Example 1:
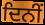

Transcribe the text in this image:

ਦਿਨੀਂ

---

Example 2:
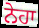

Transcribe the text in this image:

ਨੇਹਾ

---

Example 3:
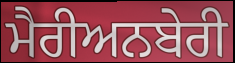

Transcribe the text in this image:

ਮੈਰੀਅਨਬੇਰੀ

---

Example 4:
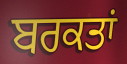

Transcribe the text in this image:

ਬਰਕਤਾਂ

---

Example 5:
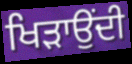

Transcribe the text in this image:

ਖਿੜਾਉਂਦੀ